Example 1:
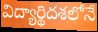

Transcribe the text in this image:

విద్యార్థిదశలోనే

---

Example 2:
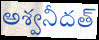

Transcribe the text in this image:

అశ్వనీదత్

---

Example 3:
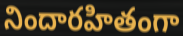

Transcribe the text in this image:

నిందారహితంగా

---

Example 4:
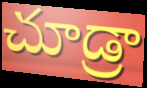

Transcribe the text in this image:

చూడ్రా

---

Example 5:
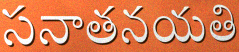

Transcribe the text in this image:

సనాతనయతి